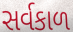
સર્વકાળ